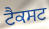
ਟੈਕਸਟ